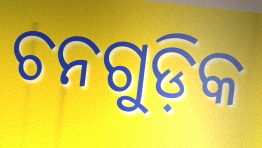
ଚନଗୁଡ଼ିକ